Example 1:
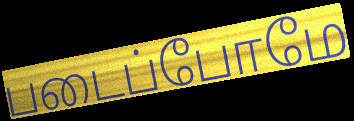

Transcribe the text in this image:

படைப்போமே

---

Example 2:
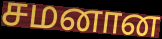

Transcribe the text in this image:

சமனான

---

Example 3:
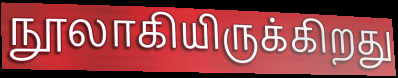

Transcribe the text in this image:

நூலாகியிருக்கிறது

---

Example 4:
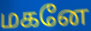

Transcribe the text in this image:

மகனே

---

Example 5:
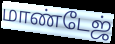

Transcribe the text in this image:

மாண்டேஜ்